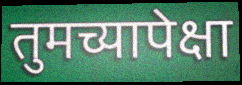
तुमच्यापेक्षा